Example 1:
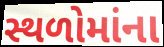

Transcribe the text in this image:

સ્થળોમાંના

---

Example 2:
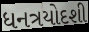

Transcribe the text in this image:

ધનત્રયોદશી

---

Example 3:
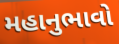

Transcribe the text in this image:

મહાનુભાવો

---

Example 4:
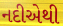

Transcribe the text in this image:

નદીએથી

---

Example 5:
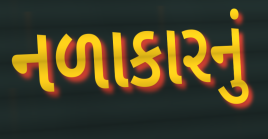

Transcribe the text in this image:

નળાકારનું